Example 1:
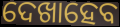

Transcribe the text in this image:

ଦେଖାହେବ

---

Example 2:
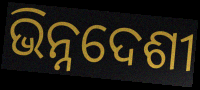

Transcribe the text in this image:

ଭିନ୍ନଦେଶୀ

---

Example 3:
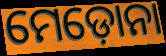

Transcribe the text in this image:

ମେଡ଼ୋନା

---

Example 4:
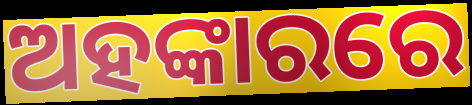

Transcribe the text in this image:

ଅହଙ୍କାରରେ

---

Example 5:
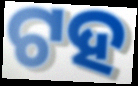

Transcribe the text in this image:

ଟହ